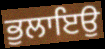
ਭੁਲਾਇਉ